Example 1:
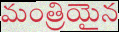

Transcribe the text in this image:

మంత్రియైన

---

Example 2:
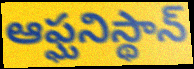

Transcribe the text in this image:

ఆఫ్ఘనిస్థాన్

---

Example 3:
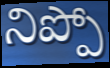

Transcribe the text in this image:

నిప్పో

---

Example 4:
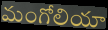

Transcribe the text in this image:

మంగోలియా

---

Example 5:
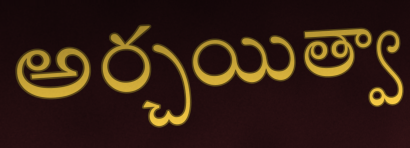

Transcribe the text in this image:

అర్చయిత్వా